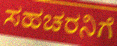
ಸಹಚರನಿಗೆ